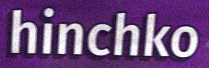
hinchko